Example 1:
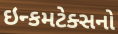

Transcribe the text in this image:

ઇન્કમટેક્સનો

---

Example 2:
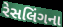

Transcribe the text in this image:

રેસલિંગના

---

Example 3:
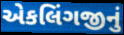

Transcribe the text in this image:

એકલિંગજીનું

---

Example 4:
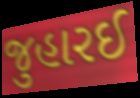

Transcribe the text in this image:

જુહારઈ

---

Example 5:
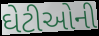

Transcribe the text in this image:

ઘેટીઓની